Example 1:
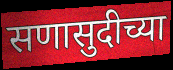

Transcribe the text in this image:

सणासुदीच्या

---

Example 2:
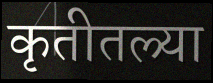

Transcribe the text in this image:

कृतीतल्या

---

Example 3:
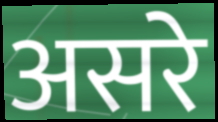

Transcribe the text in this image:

असरे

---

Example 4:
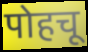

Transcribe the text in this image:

पोहचू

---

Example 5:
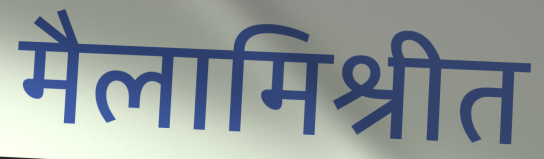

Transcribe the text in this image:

मैलामिश्रीत